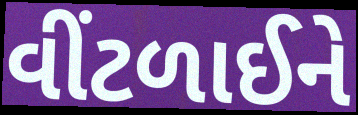
વીંટળાઈને